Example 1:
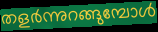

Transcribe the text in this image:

തളർന്നുറങ്ങുമ്പോൾ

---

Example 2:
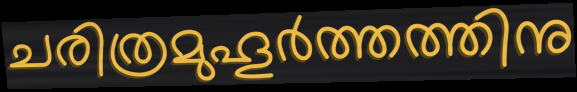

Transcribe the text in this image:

ചരിത്രമുഹൂർത്തത്തിനു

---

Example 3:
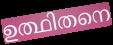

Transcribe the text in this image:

ഉത്ഥിതനെ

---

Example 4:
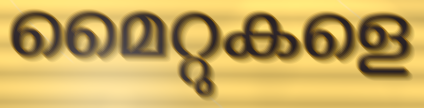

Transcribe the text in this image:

മൈറ്റുകളെ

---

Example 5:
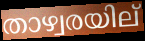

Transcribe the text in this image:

താഴ്വരയില്